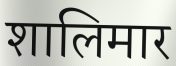
शालिमार